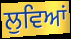
ਲੁਵਿਆਂ